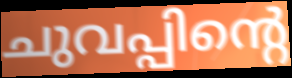
ചുവപ്പിന്റെ